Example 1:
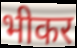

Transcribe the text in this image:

भीकर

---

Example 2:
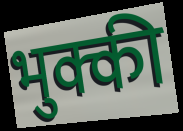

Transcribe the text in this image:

भुक्की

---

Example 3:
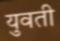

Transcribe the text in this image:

युवती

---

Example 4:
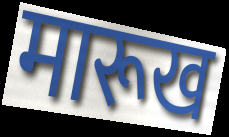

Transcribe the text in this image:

मारूख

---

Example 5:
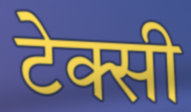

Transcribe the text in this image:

टेक्सी